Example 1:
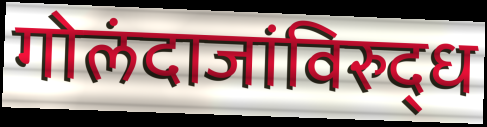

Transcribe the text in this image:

गोलंदाजांविरुद्ध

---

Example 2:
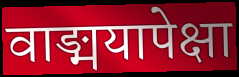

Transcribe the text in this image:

वाङ्मयापेक्षा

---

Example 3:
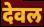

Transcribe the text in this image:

देवल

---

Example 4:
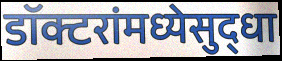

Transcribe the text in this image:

डॉक्टरांमध्येसुद्धा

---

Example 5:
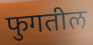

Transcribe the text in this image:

फुगतील